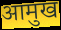
आमुख